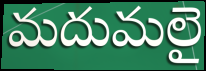
మదుమలై